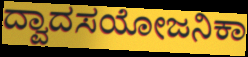
ದ್ವಾದಸಯೋಜನಿಕಾ